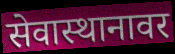
सेवास्थानावर